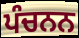
ਪੰਚਨਨ